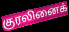
குரலினைக்